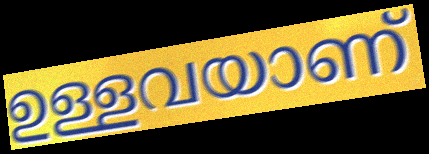
ഉള്ളവയാണ്